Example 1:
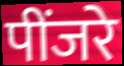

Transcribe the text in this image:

पींजरे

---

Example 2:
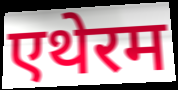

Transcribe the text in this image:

एथेरम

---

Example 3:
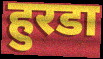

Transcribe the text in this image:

हुरडा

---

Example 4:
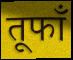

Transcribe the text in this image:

तूफाँ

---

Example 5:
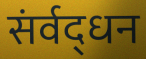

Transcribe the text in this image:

संर्वद्धन